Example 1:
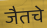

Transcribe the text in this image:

जैतचे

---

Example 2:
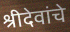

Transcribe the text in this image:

श्रीदेवांचे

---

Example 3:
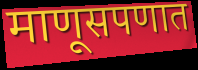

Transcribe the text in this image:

माणूसपणात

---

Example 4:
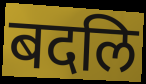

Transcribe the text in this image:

बदलि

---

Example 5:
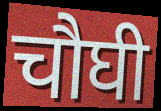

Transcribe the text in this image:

चौघी